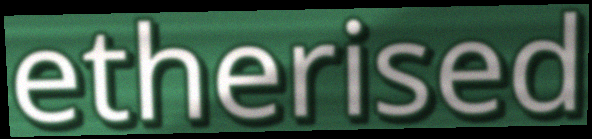
etherised